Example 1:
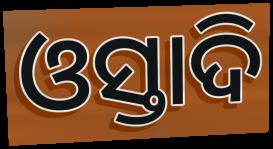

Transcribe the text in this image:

ଓସ୍ତାଦି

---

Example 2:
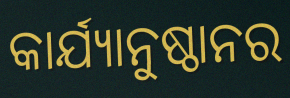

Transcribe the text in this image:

କାର୍ଯ୍ୟାନୁଷ୍ଠାନର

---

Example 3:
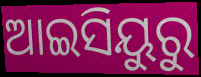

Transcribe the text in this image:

ଆଇସିୟୁରୁ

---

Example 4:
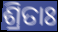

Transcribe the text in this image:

ଶ୍ରିତାଃ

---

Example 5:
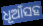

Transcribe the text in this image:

ଧୂଆଁସହ